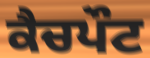
ਕੈਚਪੌਟ